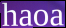
haoa